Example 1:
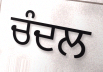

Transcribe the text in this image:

ਚੰਦਲ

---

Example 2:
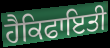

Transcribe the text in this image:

ਹੈਕਿਫਾਇਤੀ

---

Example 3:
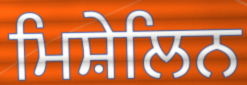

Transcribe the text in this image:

ਮਿਸ਼ੇਲਿਨ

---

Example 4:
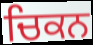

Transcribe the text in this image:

ਚਿਕਨ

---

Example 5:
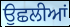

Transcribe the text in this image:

ਉਛਲੀਆਂ